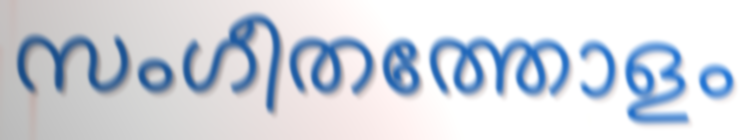
സംഗീതത്തോളം